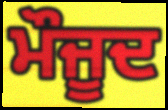
ਮੌਜੂਦ